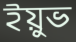
ইয়ুভ